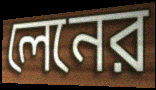
লেনের